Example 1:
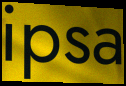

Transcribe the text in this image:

ipsa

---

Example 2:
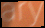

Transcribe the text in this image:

ary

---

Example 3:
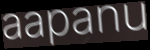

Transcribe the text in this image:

aapanu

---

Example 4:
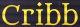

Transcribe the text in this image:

Cribb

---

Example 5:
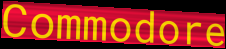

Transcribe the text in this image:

Commodore